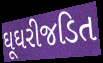
ઘૂઘરીજડિત